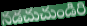
నడచుచుండిరి